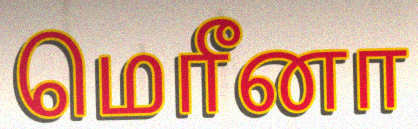
மெரீனா